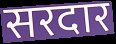
सरदार